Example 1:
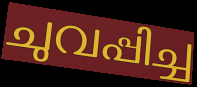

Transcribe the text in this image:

ചുവപ്പിച്ച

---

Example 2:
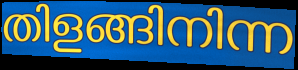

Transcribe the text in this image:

തിളങ്ങിനിന്ന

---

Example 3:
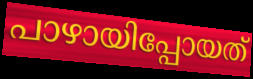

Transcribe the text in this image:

പാഴായിപ്പോയത്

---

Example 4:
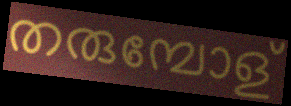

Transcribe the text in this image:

തരുമ്പോള്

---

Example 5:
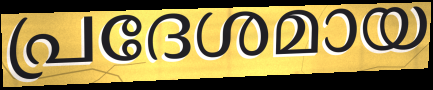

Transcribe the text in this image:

പ്രദേശമായ